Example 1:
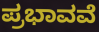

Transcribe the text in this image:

ಪ್ರಭಾವವೆ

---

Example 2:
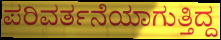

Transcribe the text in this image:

ಪರಿವರ್ತನೆಯಾಗುತ್ತಿದ್ದ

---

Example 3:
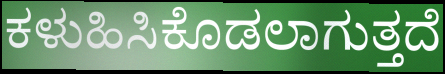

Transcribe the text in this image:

ಕಳುಹಿಸಿಕೊಡಲಾಗುತ್ತದೆ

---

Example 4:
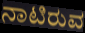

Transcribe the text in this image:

ನಾಟಿರುವ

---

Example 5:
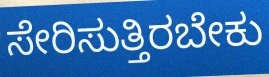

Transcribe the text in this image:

ಸೇರಿಸುತ್ತಿರಬೇಕು